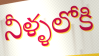
నీళ్ళలోకి